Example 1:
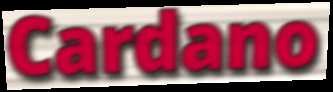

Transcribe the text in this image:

Cardano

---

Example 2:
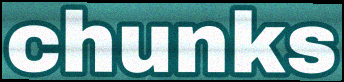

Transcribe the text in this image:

chunks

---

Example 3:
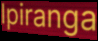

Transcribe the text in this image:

Ipiranga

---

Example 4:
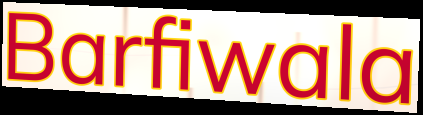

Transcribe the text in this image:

Barfiwala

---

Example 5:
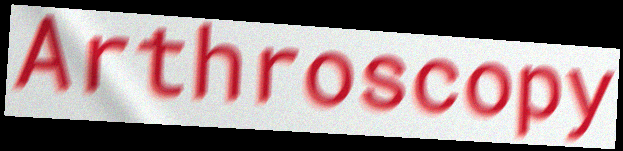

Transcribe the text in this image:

Arthroscopy